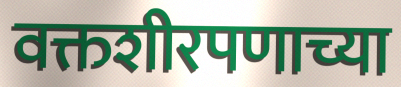
वक्तशीरपणाच्या